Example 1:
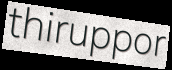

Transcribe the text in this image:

thiruppor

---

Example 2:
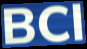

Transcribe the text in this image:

BCl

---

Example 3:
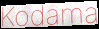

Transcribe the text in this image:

Kodama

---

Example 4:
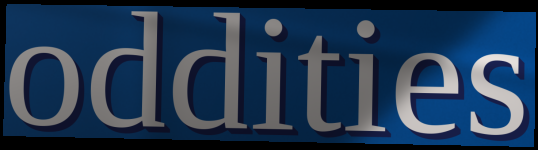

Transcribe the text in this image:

oddities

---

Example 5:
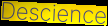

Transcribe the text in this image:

Descience